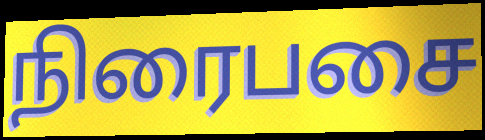
நிரைபசை